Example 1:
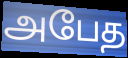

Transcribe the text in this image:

அபேத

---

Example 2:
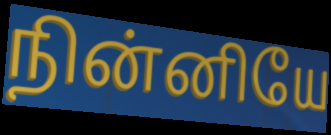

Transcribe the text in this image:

நின்னியே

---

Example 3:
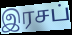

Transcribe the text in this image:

இரசப்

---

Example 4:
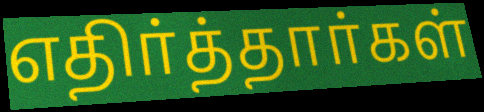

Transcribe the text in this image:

எதிர்த்தார்கள்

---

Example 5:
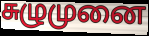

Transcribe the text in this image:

சுழுமுனை